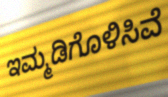
ಇಮ್ಮಡಿಗೊಳಿಸಿವೆ